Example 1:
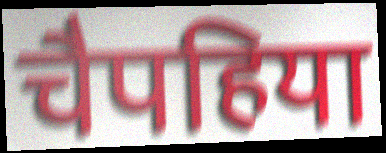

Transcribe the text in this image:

चैपहिया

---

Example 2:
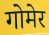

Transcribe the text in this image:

गोमेर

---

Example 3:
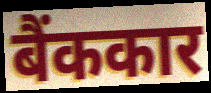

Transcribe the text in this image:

बैंककार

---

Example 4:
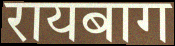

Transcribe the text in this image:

रायबाग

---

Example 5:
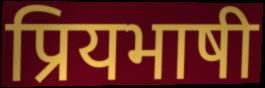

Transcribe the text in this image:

प्रियभाषी